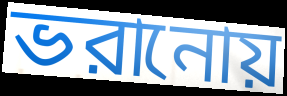
ভরানোয়